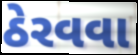
ઠેરવવા